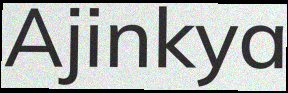
Ajinkya